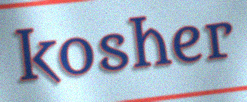
kosher